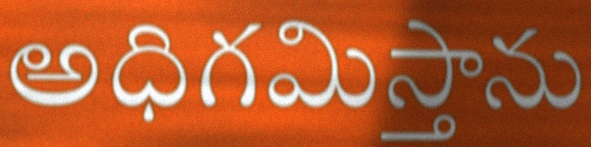
అధిగమిస్తాను